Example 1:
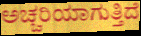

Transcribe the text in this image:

ಅಚ್ಚರಿಯಾಗುತ್ತಿದೆ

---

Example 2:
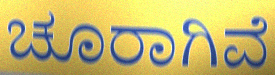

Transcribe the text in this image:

ಚೂರಾಗಿವೆ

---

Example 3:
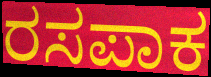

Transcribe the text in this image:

ರಸಪಾಕ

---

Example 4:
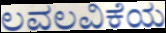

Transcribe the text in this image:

ಲವಲವಿಕೆಯ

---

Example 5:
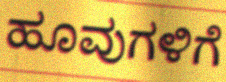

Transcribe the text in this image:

ಹೂವುಗಳಿಗೆ